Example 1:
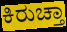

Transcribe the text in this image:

ಕಿರುಚ್ತಾ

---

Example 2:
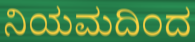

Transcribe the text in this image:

ನಿಯಮದಿಂದ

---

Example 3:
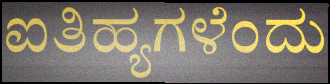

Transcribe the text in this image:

ಐತಿಹ್ಯಗಳೆಂದು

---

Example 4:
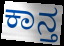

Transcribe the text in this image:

ಕಾನ್ತ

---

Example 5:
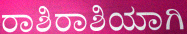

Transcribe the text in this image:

ರಾಶಿರಾಶಿಯಾಗಿ